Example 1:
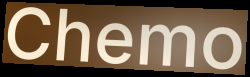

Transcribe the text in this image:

Chemo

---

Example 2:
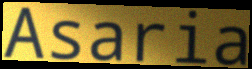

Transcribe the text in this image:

Asaria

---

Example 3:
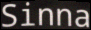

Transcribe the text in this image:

Sinna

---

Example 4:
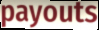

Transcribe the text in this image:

payouts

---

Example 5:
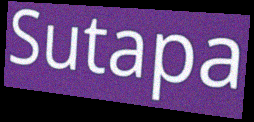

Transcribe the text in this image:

Sutapa